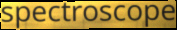
spectroscope